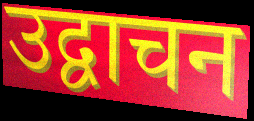
उद्वाचन